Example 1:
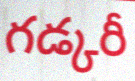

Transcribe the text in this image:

గడ్కరీ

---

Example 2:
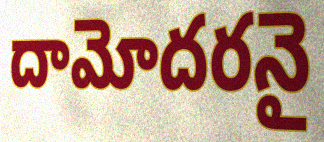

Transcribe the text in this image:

దామోదరనై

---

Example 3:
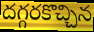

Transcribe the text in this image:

దగ్గరకొచ్చిన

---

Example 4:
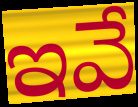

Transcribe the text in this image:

ఇవే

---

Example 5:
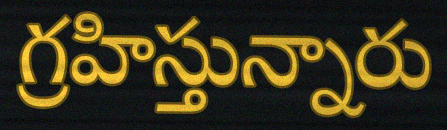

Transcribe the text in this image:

గ్రహిస్తున్నారు